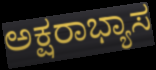
ಅಕ್ಷರಾಭ್ಯಾಸ